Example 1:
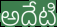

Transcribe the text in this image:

అదేటి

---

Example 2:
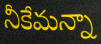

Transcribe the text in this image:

నీకేమన్నా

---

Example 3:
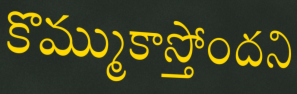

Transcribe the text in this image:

కొమ్ముకాస్తోందని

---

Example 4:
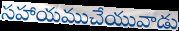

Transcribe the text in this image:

సహాయముచేయువాడు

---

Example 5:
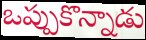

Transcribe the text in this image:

ఒప్పుకొన్నాడు